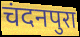
चंदनपुरा